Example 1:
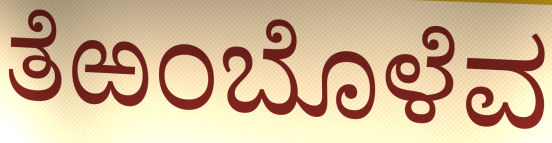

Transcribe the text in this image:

ತೆಱಂಬೊಳೆವ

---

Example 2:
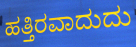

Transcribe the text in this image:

ಹತ್ತಿರವಾದುದು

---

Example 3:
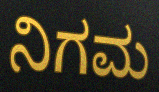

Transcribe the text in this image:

ನಿಗಮ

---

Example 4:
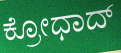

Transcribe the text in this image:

ಕ್ರೋಧಾದ್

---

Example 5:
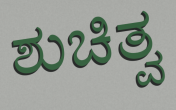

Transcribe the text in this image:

ಶುಚಿತ್ವ